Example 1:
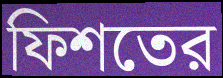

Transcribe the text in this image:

ফিশতের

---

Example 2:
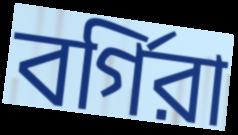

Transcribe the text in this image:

বর্গিরা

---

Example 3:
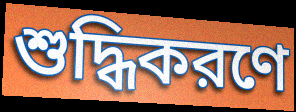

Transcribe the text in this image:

শুদ্ধিকরণে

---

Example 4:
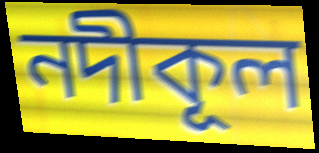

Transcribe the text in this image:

নদীকূল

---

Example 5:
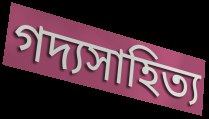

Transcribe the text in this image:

গদ্যসাহিত্য